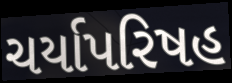
ચર્યાપરિષહ